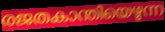
രജതകാന്തിയെഴുന്ന